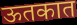
ऊतकात